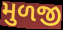
મુળજી